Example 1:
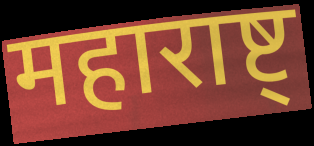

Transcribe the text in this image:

महाराष्ट्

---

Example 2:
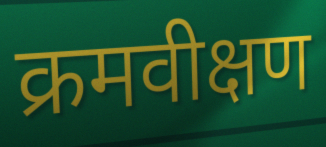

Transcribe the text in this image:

क्रमवीक्षण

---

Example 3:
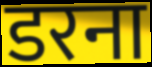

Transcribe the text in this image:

डरना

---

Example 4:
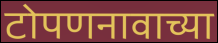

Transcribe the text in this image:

टोपणनावाच्या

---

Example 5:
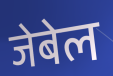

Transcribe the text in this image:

जेबेल